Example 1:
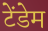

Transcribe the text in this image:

टेंडेम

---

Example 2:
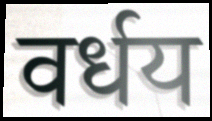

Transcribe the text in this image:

वर्धय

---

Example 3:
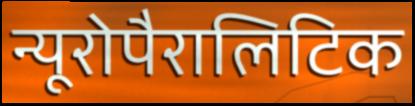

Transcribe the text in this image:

न्यूरोपैरालिटिक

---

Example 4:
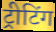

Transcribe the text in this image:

ट्रीटिंग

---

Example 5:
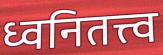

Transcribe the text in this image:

ध्वनितत्त्व